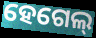
ହେଗେଲ୍